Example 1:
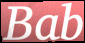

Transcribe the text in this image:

Bab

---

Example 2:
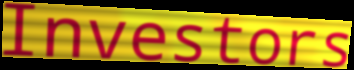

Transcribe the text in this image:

Investors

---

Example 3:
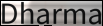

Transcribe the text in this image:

Dharma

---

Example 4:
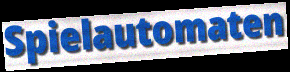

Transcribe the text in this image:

Spielautomaten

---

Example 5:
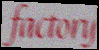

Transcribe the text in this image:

factory